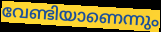
വേണ്ടിയാണെന്നും